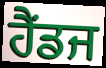
ਹੈਂਡਜ